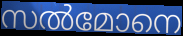
സൽമോനെ